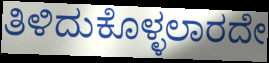
ತಿಳಿದುಕೊಳ್ಳಲಾರದೇ